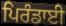
ਪਿਰੰਡਾਈ